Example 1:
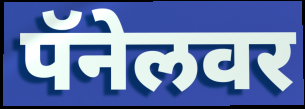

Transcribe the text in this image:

पॅनेलवर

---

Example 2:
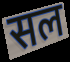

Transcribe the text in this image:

सल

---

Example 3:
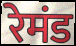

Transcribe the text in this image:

रेमंड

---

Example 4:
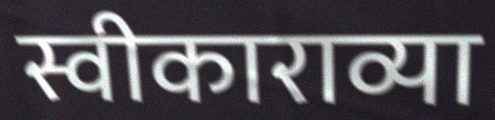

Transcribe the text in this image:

स्वीकाराव्या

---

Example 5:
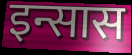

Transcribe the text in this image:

इन्सास